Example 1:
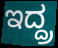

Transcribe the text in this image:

ಇದ್ದ್ರ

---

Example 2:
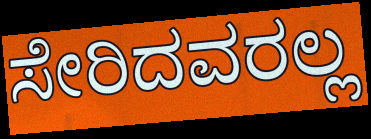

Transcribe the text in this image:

ಸೇರಿದವರಲ್ಲ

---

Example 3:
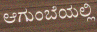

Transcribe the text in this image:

ಆಗುಂಬೆಯಲ್ಲಿ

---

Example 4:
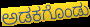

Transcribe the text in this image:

ಅಡಕಗೊಂಡು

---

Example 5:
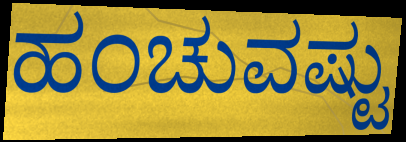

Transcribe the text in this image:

ಹಂಚುವಷ್ಟು